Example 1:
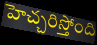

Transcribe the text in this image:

హెచ్చరిస్తోంది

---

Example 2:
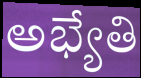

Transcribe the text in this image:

అభ్యేతి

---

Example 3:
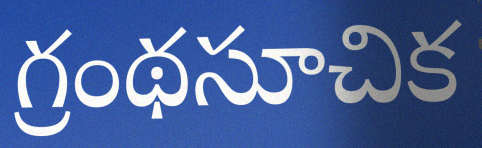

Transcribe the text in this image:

గ్రంథసూచిక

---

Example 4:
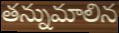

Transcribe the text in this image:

తన్నుమాలిన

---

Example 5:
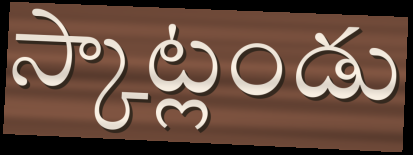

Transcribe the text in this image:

స్కాట్లండు